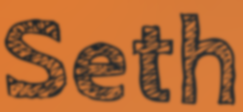
Seth